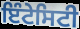
ਇੰਟੇਸਿਟੀ